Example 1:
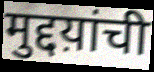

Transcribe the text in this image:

मुद्दय़ांची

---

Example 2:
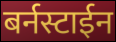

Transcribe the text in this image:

बर्नस्टाईन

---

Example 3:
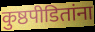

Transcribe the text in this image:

कुष्ठपीडितांना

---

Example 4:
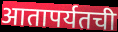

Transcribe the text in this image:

आतापर्यतची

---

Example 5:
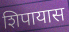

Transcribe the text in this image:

शिपायास